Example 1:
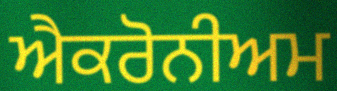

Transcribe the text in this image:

ਐਕਰੋਨੀਅਮ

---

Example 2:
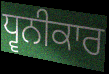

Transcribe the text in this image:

ਧ੍ਵਨੀਕਾਰ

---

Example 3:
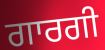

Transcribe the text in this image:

ਗਾਰਗੀ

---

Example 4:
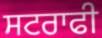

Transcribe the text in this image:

ਸਟਰਾਫੀ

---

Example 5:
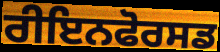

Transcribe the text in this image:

ਰੀਇਨਫੋਰਸਡ